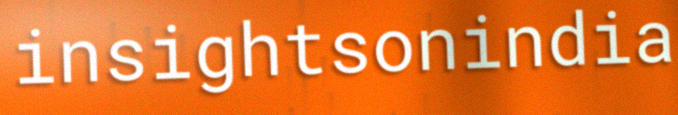
insightsonindia